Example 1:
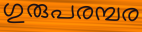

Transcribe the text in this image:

ഗുരുപരമ്പര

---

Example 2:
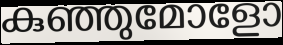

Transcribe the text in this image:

കുഞ്ഞുമോളോ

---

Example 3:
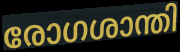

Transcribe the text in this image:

രോഗശാന്തി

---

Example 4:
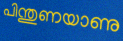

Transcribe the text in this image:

പിന്തുണയാണു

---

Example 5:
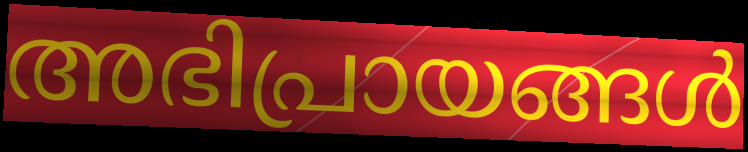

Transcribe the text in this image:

അഭിപ്രായങ്ങൾ